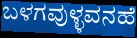
ಬಳಗವುಳ್ಳವನಹೆ